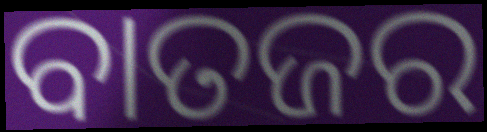
ବାତଜର